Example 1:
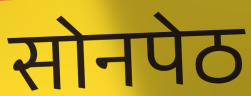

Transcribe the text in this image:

सोनपेठ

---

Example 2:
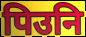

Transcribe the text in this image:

पिउनि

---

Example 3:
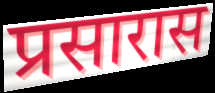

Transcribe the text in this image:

प्रसारास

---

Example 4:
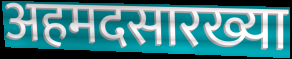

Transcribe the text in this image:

अहमदसारख्या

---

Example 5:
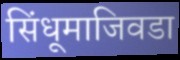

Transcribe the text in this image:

सिंधूमाजिवडा